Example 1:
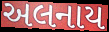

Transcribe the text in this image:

અલનાય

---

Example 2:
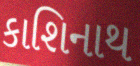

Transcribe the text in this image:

કાશિનાથ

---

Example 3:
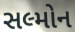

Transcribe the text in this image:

સલ્મોન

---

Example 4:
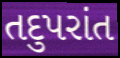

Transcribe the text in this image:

તદુપરાંત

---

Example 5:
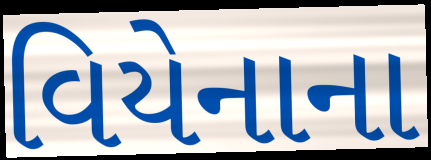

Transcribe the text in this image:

વિયેનાના